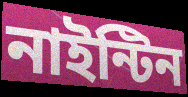
নাইন্টিন